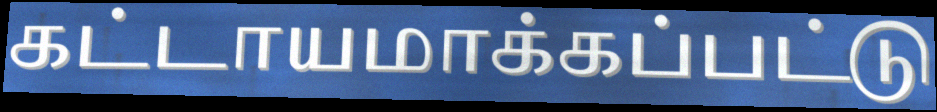
கட்டாயமாக்கப்பட்டு